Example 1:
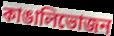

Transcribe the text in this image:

কাঙালিভোজন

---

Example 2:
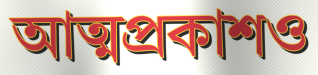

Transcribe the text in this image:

আত্মপ্রকাশও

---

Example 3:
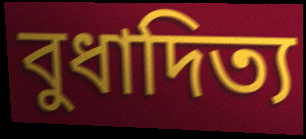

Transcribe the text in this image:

বুধাদিত্য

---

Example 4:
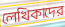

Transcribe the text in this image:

লেখিকাদের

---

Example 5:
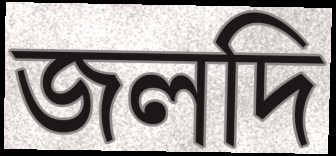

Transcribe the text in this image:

জলদি